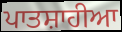
ਪਾਤਸ਼ਾਹੀਆ